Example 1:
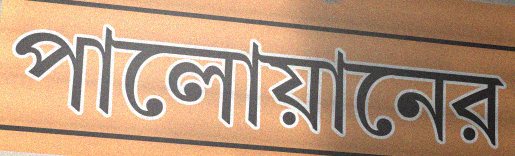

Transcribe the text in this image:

পালোয়ানের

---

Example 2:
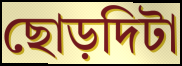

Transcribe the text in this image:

ছোড়দিটা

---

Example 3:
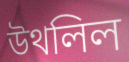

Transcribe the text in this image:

উথলিল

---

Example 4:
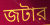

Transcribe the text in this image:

জটার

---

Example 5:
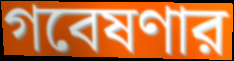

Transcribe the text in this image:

গবেষণার